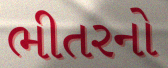
ભીતરનો